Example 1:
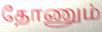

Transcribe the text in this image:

தோணும்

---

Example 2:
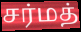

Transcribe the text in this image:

சர்மத்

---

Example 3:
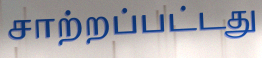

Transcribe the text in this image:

சாற்றப்பட்டது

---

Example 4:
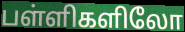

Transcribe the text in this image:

பள்ளிகளிலோ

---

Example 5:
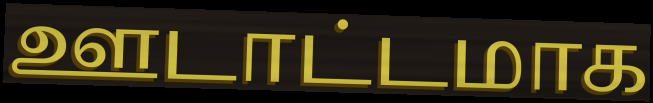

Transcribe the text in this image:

ஊடாட்டமாக